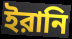
ইরানি